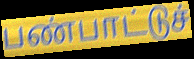
பண்பாட்டுச்